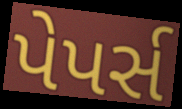
પેપર્સ